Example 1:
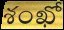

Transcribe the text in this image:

శంఖో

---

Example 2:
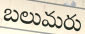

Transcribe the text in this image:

బలుమరు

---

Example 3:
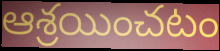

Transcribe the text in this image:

ఆశ్రయించటం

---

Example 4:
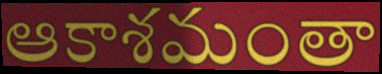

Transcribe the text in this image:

ఆకాశమంతా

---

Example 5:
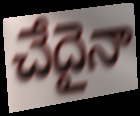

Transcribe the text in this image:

చేదైనా